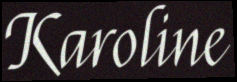
Karoline